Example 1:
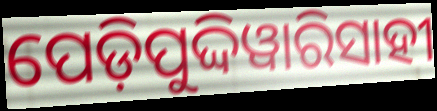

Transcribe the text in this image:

ପେଡ଼ିପୁଦ୍ଦିୱାରିସାହୀ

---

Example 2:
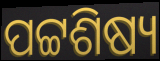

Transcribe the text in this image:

ପଟ୍ଟଶିଷ୍ୟ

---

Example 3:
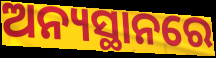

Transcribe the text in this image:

ଅନ୍ୟସ୍ଥାନରେ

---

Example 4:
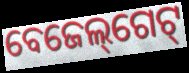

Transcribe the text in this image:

ବେଜେଲ୍‌ଗେଟ୍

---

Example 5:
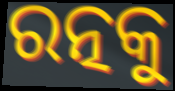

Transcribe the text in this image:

ରତ୍ନକୁ